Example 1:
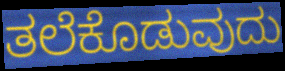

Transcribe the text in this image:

ತಲೆಕೊಡುವುದು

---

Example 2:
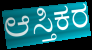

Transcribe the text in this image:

ಆಸ್ತಿಕರ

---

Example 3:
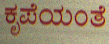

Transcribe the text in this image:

ಕೃಪೆಯಂತೆ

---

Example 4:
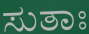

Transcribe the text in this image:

ಸುತಾಃ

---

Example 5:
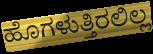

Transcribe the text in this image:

ಹೊಗಳುತ್ತಿರಲಿಲ್ಲ